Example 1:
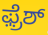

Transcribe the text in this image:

ಫ಼್ರೆಶ್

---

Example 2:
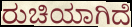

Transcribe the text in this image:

ರುಚಿಯಾಗಿದೆ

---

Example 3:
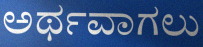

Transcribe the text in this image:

ಅರ್ಥವಾಗಲು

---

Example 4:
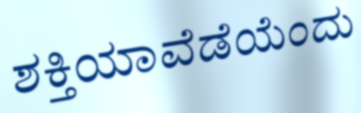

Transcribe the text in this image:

ಶಕ್ತಿಯಾವೆಡೆಯೆಂದು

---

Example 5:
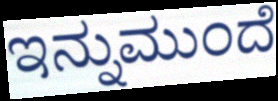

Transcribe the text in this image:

ಇನ್ನುಮುಂದೆ